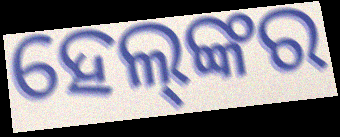
ହେଲ୍‌ଙ୍କର